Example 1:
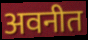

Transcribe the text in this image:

अवनीत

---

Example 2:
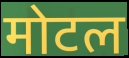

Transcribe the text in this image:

मोटल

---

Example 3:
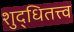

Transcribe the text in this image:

शुद्धितत्त्व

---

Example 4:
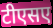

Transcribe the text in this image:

टीएसए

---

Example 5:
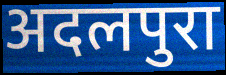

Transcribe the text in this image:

अदलपुरा